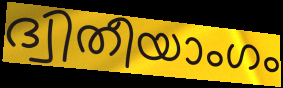
ദ്വിതീയാംഗം